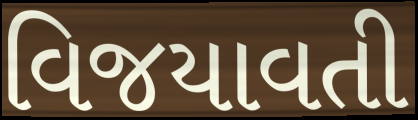
વિજયાવતી